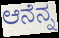
ಆನೆನ್ನ